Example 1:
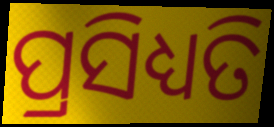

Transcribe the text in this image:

ପ୍ରସିଧ୍ୟତି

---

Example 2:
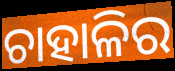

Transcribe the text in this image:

ଚାହାଳିର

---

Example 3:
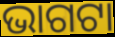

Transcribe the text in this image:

ଭାଗଟା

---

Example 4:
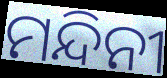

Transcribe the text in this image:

ମନ୍ଦିନୀ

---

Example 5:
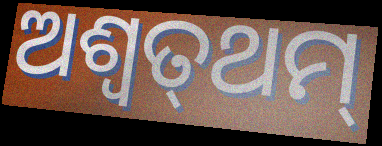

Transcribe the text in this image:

ଅଶ୍ୱତ୍‌ଥମ୍